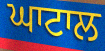
ਘਾਟਾਲ